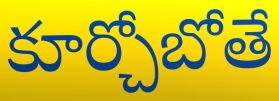
కూర్చోబోతే